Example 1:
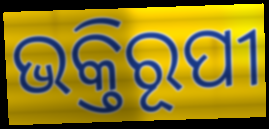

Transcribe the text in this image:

ଭକ୍ତିରୂପୀ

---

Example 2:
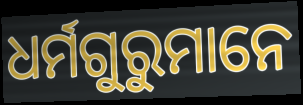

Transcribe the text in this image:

ଧର୍ମଗୁରୁମାନେ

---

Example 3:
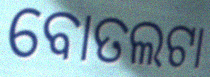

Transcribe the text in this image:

ବୋତଲଟା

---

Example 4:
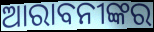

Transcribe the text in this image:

ଆରାବନୀଙ୍କର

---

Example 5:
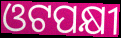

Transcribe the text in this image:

ଓଟପକ୍ଷୀ